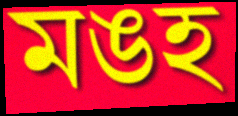
মঙহ